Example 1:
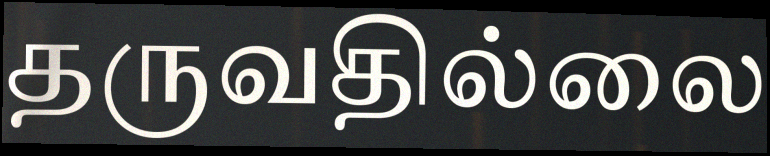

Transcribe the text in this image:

தருவதில்லை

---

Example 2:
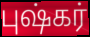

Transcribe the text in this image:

புஷ்கர்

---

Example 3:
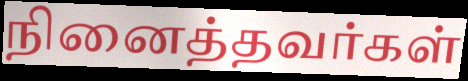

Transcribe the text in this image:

நினைத்தவர்கள்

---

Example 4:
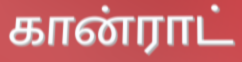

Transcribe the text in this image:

கான்ராட்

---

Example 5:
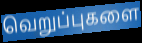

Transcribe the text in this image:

வெறுப்புகளை